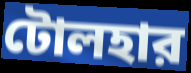
টোলহার